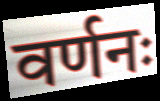
वर्णनः